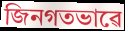
জিনগতভাৱে